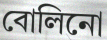
বোলিনো